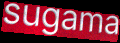
sugama